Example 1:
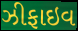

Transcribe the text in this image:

ઝીફાઇવ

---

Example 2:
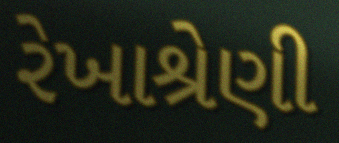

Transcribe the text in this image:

રેખાશ્રેણી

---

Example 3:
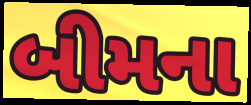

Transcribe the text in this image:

બીમના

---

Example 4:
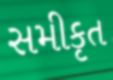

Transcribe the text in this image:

સમીકૃત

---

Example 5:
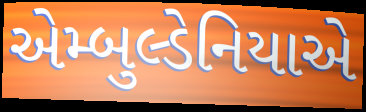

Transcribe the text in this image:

એમ્બુલ્ડેનિયાએ